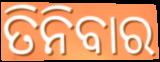
ତିନିବାର